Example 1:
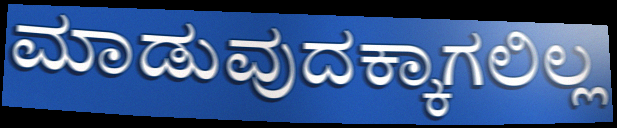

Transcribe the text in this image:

ಮಾಡುವುದಕ್ಕಾಗಲಿಲ್ಲ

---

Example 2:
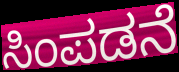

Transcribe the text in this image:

ಸಿಂಪಡನೆ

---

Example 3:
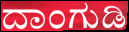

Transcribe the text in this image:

ದಾಂಗುಡಿ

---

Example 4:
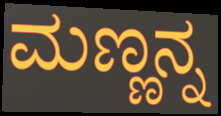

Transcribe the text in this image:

ಮಣ್ಣನ್ನ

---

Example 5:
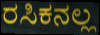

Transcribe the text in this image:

ರಸಿಕನಲ್ಲ